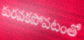
కురవకపోవటంతో